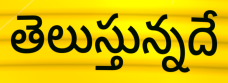
తెలుస్తున్నదే